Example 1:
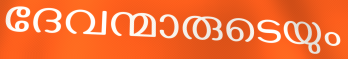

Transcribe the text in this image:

ദേവന്മാരുടെയും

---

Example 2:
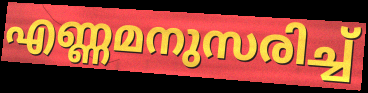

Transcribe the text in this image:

എണ്ണമനുസരിച്ച്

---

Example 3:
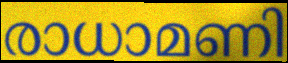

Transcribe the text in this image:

രാധാമണി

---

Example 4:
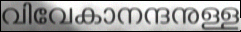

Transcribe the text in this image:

വിവേകാനന്ദനുള്ള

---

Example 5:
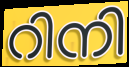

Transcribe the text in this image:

റിനി